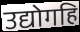
उद्योगहि